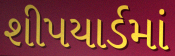
શીપયાર્ડમાં